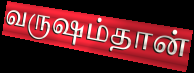
வருஷம்தான்